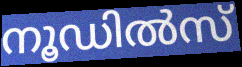
നൂഡിൽസ്